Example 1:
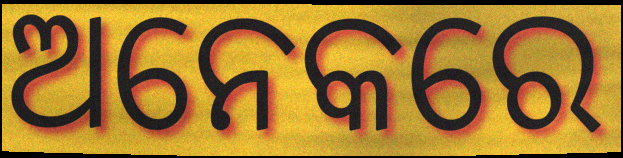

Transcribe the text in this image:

ଅନେକରେ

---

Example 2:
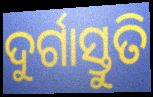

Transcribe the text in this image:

ଦୁର୍ଗାସ୍ତୁତି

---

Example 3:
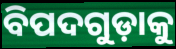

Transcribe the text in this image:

ବିପଦଗୁଡ଼ାକୁ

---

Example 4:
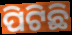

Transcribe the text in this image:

ପିଟିଛି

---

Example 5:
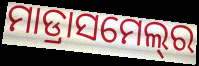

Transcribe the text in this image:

ମାଡ୍ରାସମେଲ୍‍ର